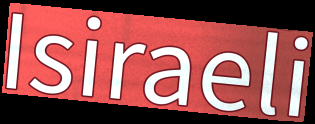
Isiraeli